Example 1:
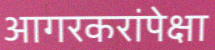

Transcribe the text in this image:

आगरकरांपेक्षा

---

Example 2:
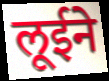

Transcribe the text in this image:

लूईने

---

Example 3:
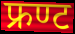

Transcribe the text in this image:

फ्रण्ट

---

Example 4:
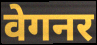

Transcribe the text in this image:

वेगनर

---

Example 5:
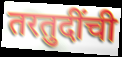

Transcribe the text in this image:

तरतुदींची